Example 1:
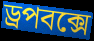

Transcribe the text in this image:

ড্রপবক্সে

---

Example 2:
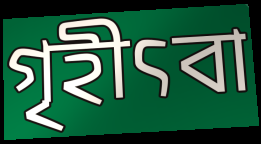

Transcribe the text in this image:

গৃহীৎবা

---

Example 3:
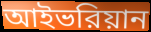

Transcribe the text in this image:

আইভরিয়ান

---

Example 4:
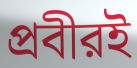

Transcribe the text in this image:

প্রবীরই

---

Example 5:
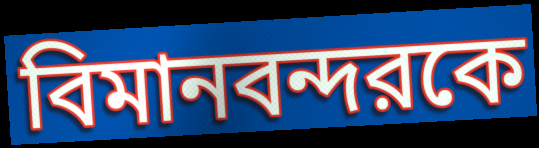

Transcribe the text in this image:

বিমানবন্দরকে